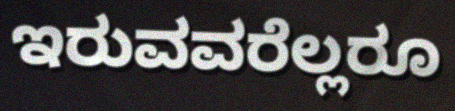
ಇರುವವರೆಲ್ಲರೂ